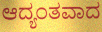
ಆದ್ಯಂತವಾದ